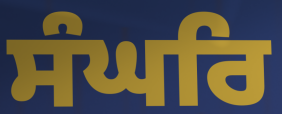
ਸੰਘਰਿ